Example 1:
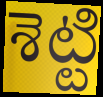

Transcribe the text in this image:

శెట్టి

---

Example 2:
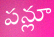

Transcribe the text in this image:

పన్లూ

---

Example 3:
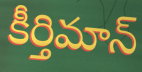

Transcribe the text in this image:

కీర్తిమాన్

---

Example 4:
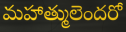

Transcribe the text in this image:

మహాత్ములెందరో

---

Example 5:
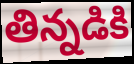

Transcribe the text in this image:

తిన్నడికి